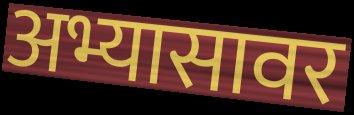
अभ्यासावर